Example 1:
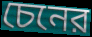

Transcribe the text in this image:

চেনের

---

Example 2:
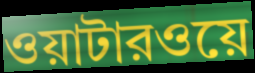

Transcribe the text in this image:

ওয়াটারওয়ে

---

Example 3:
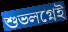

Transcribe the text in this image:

শুভলগ্নেই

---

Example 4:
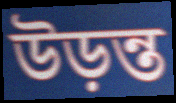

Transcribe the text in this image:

উড়ন্ত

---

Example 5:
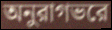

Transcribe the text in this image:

অনুরাগভরে